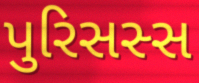
પુરિસસ્સ